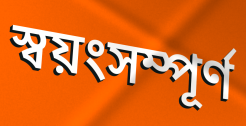
স্বয়ংসম্পূৰ্ণ